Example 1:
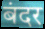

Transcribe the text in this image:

बंदर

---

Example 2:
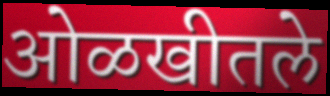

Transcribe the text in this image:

ओळखीतले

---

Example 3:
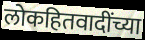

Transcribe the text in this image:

लोकहितवादींच्या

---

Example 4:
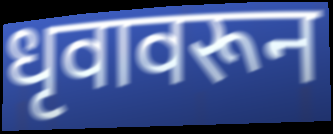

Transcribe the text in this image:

धृवावरून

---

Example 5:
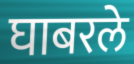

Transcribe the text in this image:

घाबरले